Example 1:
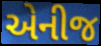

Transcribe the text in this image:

એનીજ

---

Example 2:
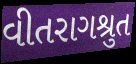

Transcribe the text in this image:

વીતરાગશ્રુત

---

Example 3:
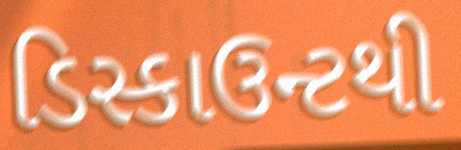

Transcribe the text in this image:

ડિસ્કાઉન્ટથી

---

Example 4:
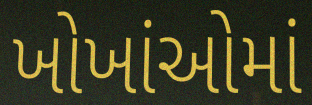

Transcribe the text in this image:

ખોખાંઓમાં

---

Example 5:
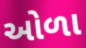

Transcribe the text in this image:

ઓળા